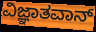
ವಿಜ್ಞಾತವಾನ್